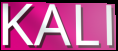
KALI